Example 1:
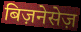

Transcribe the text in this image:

बिज़नेसेज़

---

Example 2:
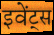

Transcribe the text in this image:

इवेंट्स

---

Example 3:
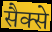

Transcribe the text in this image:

सैक्से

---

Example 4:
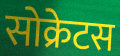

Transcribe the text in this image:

सोक्रेटस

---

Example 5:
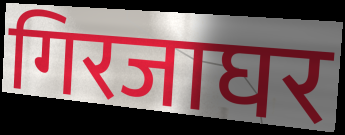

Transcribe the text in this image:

गिरजाघर